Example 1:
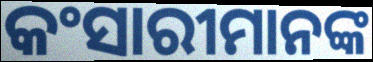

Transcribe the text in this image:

କଂସାରୀମାନଙ୍କ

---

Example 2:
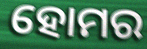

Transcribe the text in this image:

ହୋମର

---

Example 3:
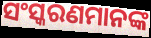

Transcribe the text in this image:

ସଂସ୍କରଣମାନଙ୍କ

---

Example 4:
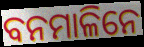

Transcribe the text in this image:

ବନମାଳିନେ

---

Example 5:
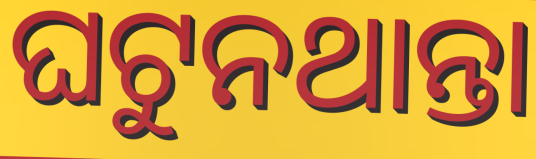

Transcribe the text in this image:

ଘଟୁନଥାନ୍ତା